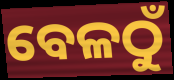
ବେଳଠୁଁ